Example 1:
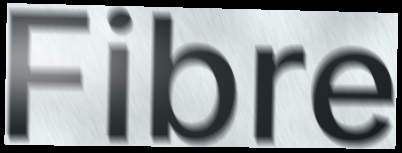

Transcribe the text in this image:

Fibre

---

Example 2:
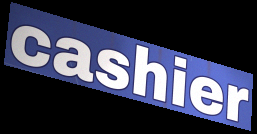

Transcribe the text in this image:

cashier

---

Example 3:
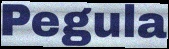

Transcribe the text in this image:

Pegula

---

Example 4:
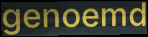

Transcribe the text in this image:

genoemd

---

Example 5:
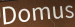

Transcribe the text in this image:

Domus